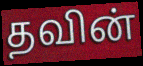
தவின்